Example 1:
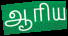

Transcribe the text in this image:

ஆரிய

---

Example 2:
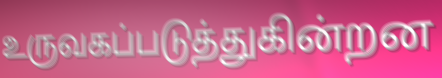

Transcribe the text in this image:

உருவகப்படுத்துகின்றன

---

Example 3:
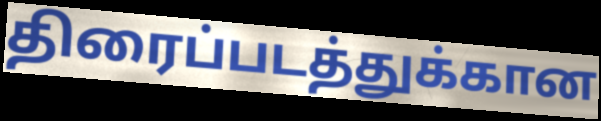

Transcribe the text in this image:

திரைப்படத்துக்கான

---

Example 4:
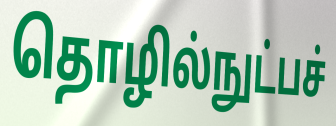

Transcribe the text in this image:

தொழில்நுட்பச்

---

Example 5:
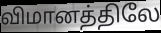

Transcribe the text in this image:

விமானத்திலே